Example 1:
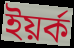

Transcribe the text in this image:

ইয়ৰ্ক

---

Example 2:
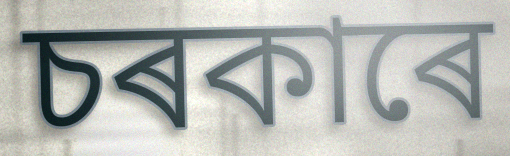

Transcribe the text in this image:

চৰকাৰে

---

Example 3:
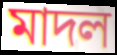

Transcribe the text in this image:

মাদল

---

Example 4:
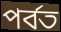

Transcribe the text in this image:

পৰ্বত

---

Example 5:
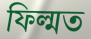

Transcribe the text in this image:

ফিল্মত